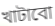
খাটাবো